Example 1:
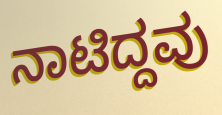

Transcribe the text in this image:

ನಾಟಿದ್ದವು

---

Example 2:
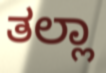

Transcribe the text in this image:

ತಲ್ಲಾ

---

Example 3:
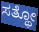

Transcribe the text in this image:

ಸತ್ಥೋ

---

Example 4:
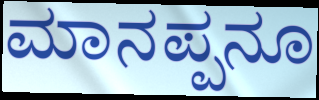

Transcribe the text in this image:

ಮಾನಪ್ಪನೂ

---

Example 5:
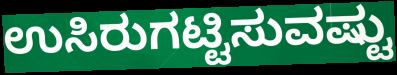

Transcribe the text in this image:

ಉಸಿರುಗಟ್ಟಿಸುವಷ್ಟು